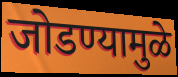
जोडण्यामुळे